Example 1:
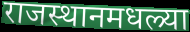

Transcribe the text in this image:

राजस्थानमधल्या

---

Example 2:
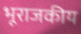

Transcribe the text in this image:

भूराजकीय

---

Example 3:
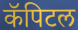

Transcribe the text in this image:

कॅपिटल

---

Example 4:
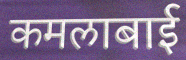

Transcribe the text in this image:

कमलाबाई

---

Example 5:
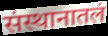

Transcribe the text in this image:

संस्थानातलं